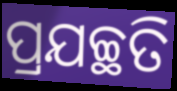
ପ୍ରଯଚ୍ଛତି